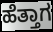
ಹೆತ್ತಾಗ